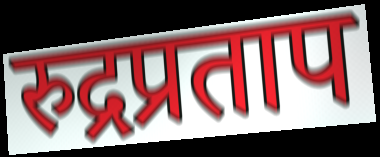
रुद्रप्रताप